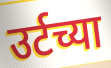
उर्टच्या